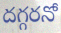
దగ్గరనో